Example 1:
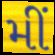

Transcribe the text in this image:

મીં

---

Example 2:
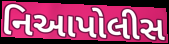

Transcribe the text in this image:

નિઆપોલીસ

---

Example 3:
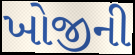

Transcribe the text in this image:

ખોજીની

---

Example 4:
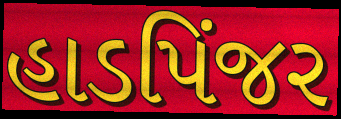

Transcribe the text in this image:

હાડપિંજર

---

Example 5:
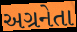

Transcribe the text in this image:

અગ્રનેતા